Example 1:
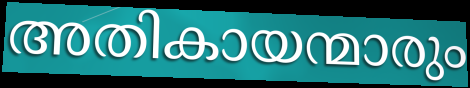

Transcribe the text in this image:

അതികായന്മാരും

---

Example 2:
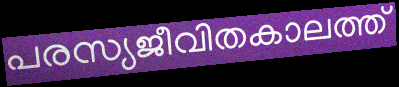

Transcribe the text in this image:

പരസ്യജീവിതകാലത്ത്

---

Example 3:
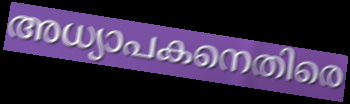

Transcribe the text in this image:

അധ്യാപകനെതിരെ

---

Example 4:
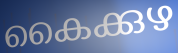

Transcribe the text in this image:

കൈക്കുഴ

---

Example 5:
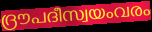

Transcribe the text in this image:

ദ്രൗപദീസ്വയംവരം